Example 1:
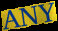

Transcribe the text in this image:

ANY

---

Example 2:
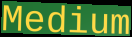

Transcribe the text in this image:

Medium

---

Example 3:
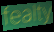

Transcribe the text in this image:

fealty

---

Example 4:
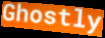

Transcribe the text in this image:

Ghostly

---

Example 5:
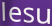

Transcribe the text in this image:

Iesu